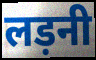
लड़नी